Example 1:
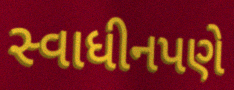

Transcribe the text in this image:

સ્વાધીનપણે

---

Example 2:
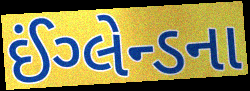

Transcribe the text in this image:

ઈંગ્લેન્ડના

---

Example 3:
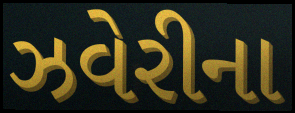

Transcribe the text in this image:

ઝવેરીના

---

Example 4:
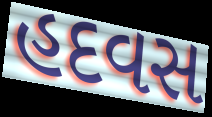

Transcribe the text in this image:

હદવસ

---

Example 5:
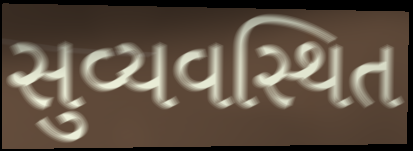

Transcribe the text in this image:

સુવ્યવસ્થિત